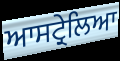
ਆਸਟ੍ਰੇਲਿਆ